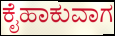
ಕೈಹಾಕುವಾಗ